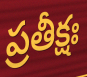
ప్రతీక్షః